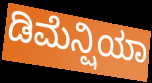
ಡಿಮೆನ್ಷಿಯಾ